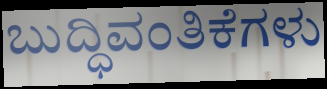
ಬುದ್ಧಿವಂತಿಕೆಗಳು